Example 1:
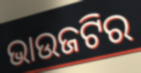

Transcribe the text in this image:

ଭାଉଜଟିର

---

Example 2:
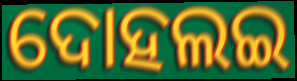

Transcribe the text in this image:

ଦୋହଲଇ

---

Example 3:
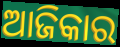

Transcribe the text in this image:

ଆଜିକାର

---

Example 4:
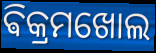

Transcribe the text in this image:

ଵିକ୍ରମଖୋଲ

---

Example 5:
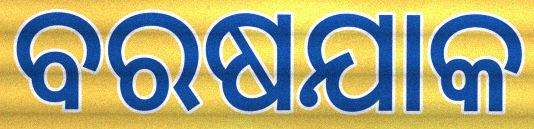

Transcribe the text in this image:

ବରଷଯାକ